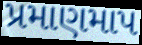
પ્રમાણમાપ